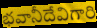
భవానీదేవిగారి